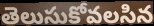
తెలుసుకోవలసిన